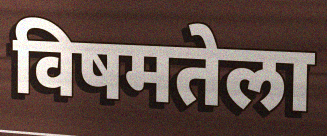
विषमतेला